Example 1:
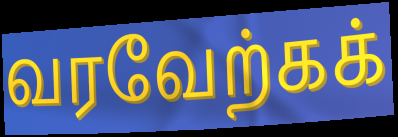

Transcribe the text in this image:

வரவேற்கக்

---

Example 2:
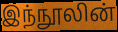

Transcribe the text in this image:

இந்நூலின்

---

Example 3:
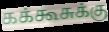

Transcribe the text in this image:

கக்கூசுக்கு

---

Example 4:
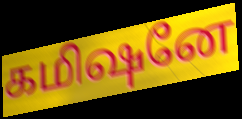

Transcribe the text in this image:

கமிஷனே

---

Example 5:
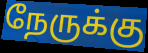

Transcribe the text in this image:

நேருக்கு